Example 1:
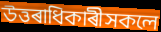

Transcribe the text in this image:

উত্তৰাধিকাৰীসকলে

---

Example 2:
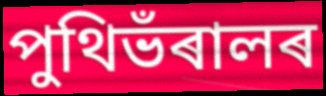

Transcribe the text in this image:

পুথিভঁৰালৰ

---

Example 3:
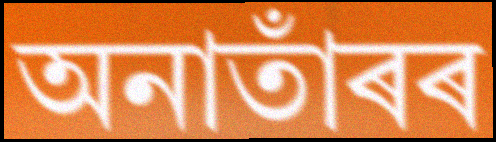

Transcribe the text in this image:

অনাতাঁৰৰ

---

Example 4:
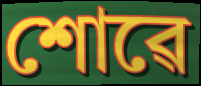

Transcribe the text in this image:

শোৱে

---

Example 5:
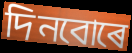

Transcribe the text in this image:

দিনবোৰে